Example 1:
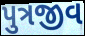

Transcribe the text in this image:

પુત્રજીવ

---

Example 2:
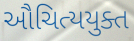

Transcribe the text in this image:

ઔચિત્યયુક્ત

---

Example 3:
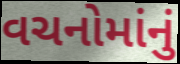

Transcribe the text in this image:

વચનોમાંનું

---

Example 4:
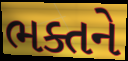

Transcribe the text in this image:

ભક્તને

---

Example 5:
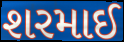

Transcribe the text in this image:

શરમાઈ